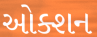
ઓક્શન